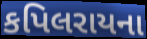
કપિલરાયના